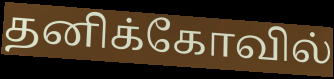
தனிக்கோவில்